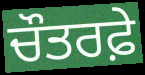
ਚੌਤਰਫ਼ੇ